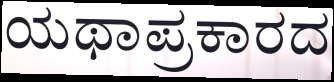
ಯಥಾಪ್ರಕಾರದ